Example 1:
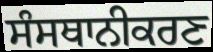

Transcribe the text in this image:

ਸੰਸਥਾਨੀਕਰਣ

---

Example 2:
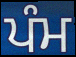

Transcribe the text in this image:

ਪੰਮ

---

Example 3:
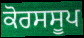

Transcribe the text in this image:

ਕੋਰਸਸੂਪ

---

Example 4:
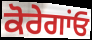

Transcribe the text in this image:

ਕੋਰੇਗਾਂਓ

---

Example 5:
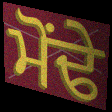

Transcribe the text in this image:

ਮੋਂਢੇ